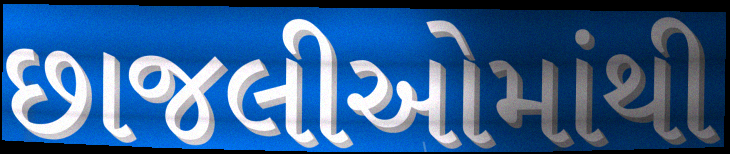
છાજલીઓમાંથી